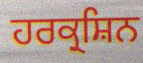
ਹਰਕ੍ਰਸ਼ਿਨ